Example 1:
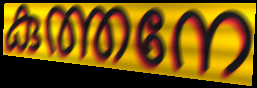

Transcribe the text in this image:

കുത്തനേ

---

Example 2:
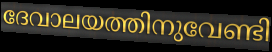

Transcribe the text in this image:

ദേവാലയത്തിനുവേണ്ടി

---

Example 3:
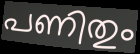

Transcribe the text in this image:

പണിതും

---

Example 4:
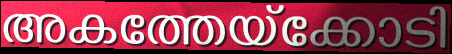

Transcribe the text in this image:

അകത്തേയ്‌ക്കോടി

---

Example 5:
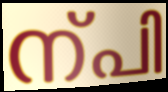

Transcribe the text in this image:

ന്പി